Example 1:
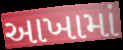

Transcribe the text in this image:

આખામાં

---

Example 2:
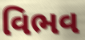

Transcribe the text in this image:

વિભવ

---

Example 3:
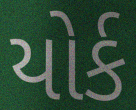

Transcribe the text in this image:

યોર્ક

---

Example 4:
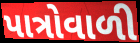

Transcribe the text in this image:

પાત્રોવાળી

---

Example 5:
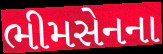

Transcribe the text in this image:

ભીમસેનના